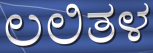
ಲಲಿತಳ